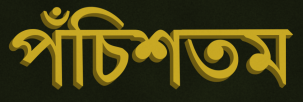
পঁচিশতম